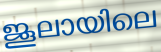
ജൂലായിലെ